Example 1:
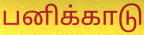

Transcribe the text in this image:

பனிக்காடு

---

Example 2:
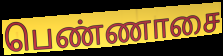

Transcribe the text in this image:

பெண்ணாசை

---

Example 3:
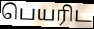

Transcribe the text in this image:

பெயரிட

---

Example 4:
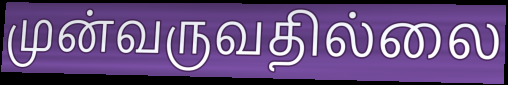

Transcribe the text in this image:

முன்வருவதில்லை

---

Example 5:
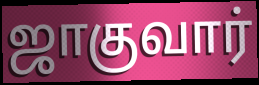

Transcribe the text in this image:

ஜாகுவார்